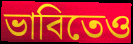
ভাবিতেও